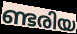
ണ്ടരിയ